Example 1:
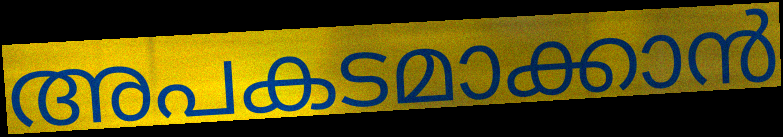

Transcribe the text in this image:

അപകടമാക്കാൻ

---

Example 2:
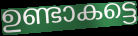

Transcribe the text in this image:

ഉണ്ടാകട്ടെ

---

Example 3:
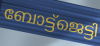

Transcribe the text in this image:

ബോട്ട്ജെട്ടി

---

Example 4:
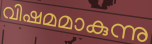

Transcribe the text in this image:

വിഷമമാകുന്നു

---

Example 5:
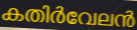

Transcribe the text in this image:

കതിർവേലൻ